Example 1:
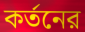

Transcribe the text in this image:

কর্তনের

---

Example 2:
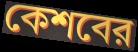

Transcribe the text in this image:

কেশবের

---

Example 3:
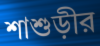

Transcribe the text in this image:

শাশুড়ীর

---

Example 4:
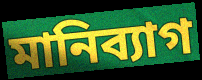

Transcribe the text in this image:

মানিব্যাগ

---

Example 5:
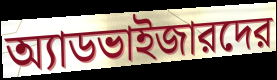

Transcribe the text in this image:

অ্যাডভাইজারদের